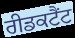
ਰੀਡਕਟੈਂਟ